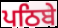
ਪਠਿਬੇ